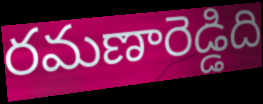
రమణారెడ్డిది